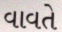
વાવતે